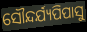
ସୌନ୍ଦର୍ଯ୍ୟପିପାସୁ